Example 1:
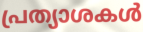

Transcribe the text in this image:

പ്രത്യാശകൾ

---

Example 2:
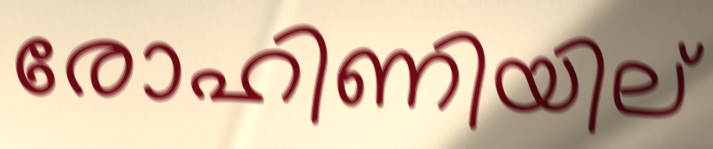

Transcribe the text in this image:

രോഹിണിയില്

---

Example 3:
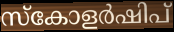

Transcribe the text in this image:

സ്കോളർഷിപ്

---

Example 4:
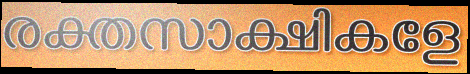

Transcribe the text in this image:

രക്തസാക്ഷികളേ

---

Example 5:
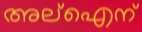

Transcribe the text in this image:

അല്ഐന്